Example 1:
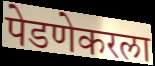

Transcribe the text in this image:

पेडणेकरला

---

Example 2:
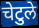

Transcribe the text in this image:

चेटुले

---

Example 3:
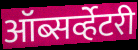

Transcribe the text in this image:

ऑब्सर्व्हेटरी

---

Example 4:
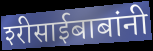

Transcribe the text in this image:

श्रीसाईबाबांनी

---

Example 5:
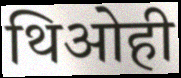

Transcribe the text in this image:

थिओही